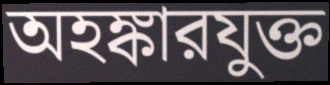
অহঙ্কারযুক্ত